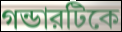
গন্ডারটিকে